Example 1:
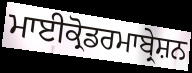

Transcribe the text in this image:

ਮਾਈਕ੍ਰੋਡਰਮਾਬ੍ਰੇਸ਼ਨ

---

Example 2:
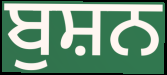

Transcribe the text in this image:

ਬੁਸ਼ਨ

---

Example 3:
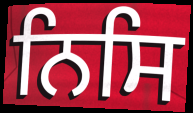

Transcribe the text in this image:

ਨਿਸਿ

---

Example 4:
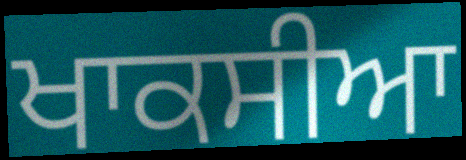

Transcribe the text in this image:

ਖਾਕਸੀਆ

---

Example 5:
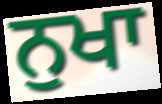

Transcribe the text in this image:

ਨੁਖਾ